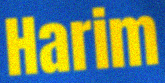
Harim